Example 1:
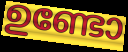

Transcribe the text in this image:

ഉണ്ടോ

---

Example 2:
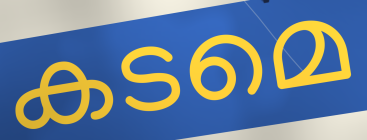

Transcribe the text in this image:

കടമെ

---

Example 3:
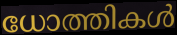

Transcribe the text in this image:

ധോത്തികൾ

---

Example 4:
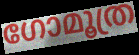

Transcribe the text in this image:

ഗോമൂത്ര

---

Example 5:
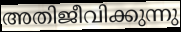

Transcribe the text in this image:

അതിജീവിക്കുന്നു